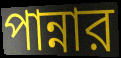
পান্নার